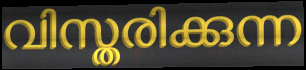
വിസ്തരിക്കുന്ന